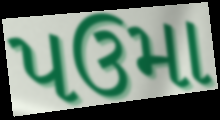
પઉમા